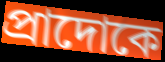
প্রাদোকে